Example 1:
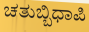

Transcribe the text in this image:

ಚತುಬ್ಬಿಧಾಪಿ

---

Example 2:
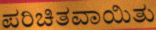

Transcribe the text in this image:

ಪರಿಚಿತವಾಯಿತು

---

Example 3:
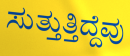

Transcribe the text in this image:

ಸುತ್ತುತ್ತಿದ್ದೆವು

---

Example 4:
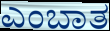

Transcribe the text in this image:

ಎಂಬಾತ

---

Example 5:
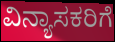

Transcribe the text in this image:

ವಿನ್ಯಾಸಕರಿಗೆ